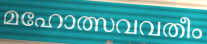
മഹോത്സവവതീം